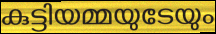
കുട്ടിയമ്മയുടേയും